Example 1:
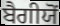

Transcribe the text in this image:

ਬੈਗੀਯੋਂ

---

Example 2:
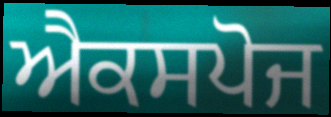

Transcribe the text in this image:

ਐਕਸਪੋਜ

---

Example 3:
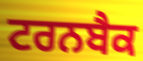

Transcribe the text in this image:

ਟਰਨਬੈਕ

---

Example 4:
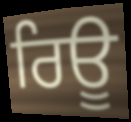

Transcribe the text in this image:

ਰਿਊ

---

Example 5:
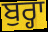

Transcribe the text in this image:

ਬੁਰ੍ਹਾ